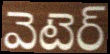
వెటెర్